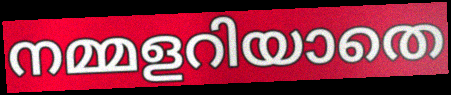
നമ്മളറിയാതെ